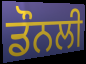
ਡੌਨਲੀ